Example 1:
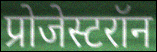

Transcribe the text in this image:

प्रोजेस्टरॉन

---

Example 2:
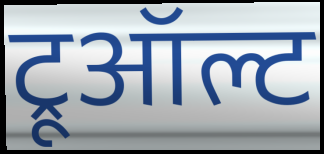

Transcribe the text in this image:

ट्रूऑल्ट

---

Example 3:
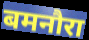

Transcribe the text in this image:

बमनौरा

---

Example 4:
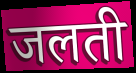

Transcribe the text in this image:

जलती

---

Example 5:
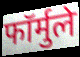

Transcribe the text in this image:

फॉर्मुले